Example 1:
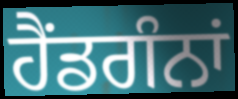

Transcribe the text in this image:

ਹੈਂਡਗੰਨਾਂ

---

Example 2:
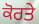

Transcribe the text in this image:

ਕੋਰਤੇ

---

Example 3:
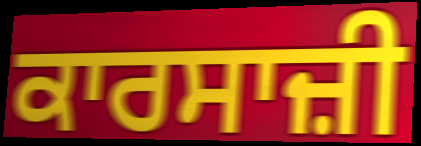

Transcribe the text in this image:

ਕਾਰਸਾਜ਼ੀ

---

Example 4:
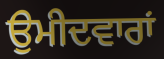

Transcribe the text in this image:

ਉੁਮੀਦਵਾਰਾਂ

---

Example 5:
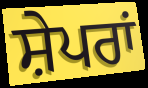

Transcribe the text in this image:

ਸ਼ੇਪਰਾਂ